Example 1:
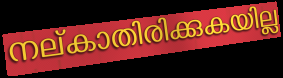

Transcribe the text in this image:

നല്‌കാതിരിക്കുകയില്ല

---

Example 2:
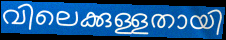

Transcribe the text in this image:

വിലെക്കുള്ളതായി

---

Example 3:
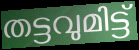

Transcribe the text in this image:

തട്ടവുമിട്ട്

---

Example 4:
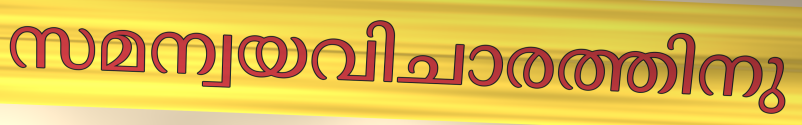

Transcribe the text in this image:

സമന്വയവിചാരത്തിനു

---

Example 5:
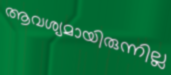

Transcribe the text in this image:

ആവശ്യമായിരുന്നില്ല